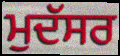
ਮੁਦੱਸਰ